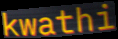
kwathi